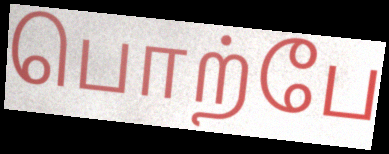
பொற்பே